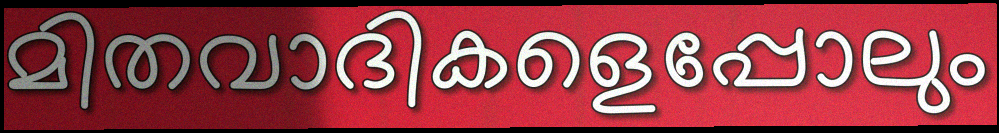
മിതവാദികളെപ്പോലും